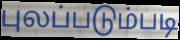
புலப்படும்படி